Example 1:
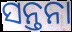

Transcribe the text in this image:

ସନ୍ତନା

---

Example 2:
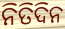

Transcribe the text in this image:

ନିତିଦିନ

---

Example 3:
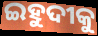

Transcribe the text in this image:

ଇହୁଦୀକୁ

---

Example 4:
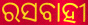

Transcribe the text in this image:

ରସବାହୀ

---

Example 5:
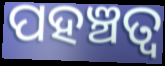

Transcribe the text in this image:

ପହଞ୍ଚତ୍ବ